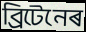
ব্ৰিটেনেৰ